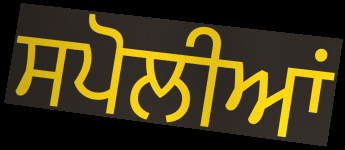
ਸਪੋਲੀਆਂ